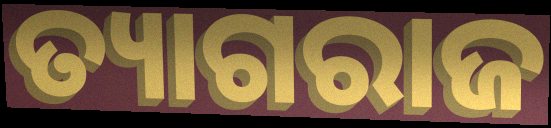
ତ୍ୟାଗରାଜ